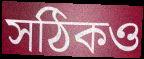
সঠিকও